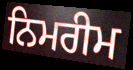
ਨਿਮਰੀਮ